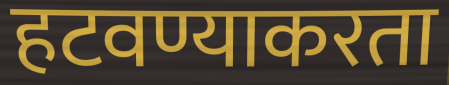
हटवण्याकरता